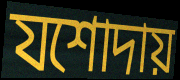
যশোদায়